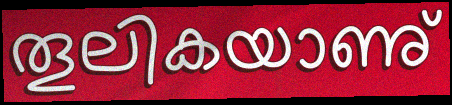
തൂലികയാണു്